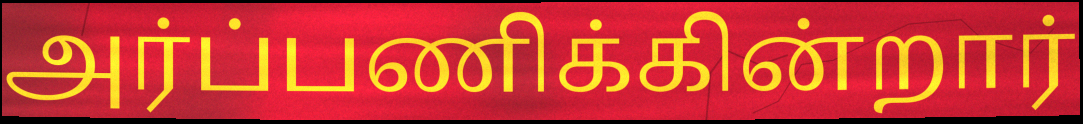
அர்ப்பணிக்கின்றார்